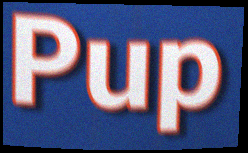
Pup